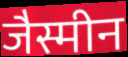
जैस्‍मीन